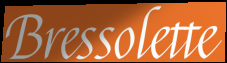
Bressolette